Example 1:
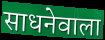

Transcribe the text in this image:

साधनेवाला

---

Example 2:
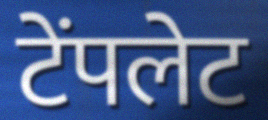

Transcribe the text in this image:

टेंपलेट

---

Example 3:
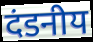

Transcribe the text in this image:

दंडनीय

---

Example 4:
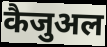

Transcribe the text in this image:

कैजुअल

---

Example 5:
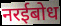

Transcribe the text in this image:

नरईबोध